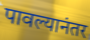
पावल्यानंतर